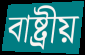
বাষ্ট্রীয়